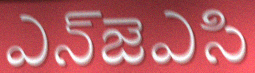
ఎన్‌జెఎసి